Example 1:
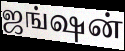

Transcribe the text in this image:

ஜங்ஷன்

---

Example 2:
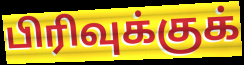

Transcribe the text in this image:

பிரிவுக்குக்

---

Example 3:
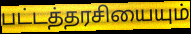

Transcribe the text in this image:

பட்டத்தரசியையும்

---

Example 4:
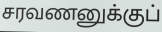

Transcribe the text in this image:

சரவணனுக்குப்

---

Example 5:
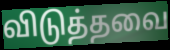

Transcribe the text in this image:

விடுத்தவை